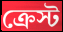
ক্রেস্ট